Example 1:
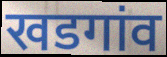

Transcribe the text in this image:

खडगांव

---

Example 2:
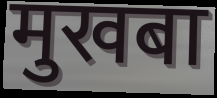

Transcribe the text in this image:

मुखबा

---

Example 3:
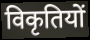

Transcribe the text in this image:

विकृतियों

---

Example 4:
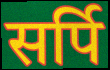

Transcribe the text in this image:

सर्पि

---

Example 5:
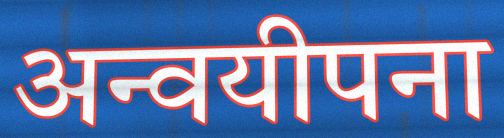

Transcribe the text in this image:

अन्वयीपना